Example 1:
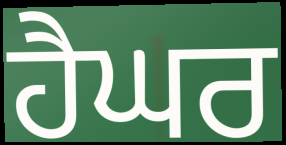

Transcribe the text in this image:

ਹੈਘਰ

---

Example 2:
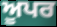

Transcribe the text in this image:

ਅੂਪਰ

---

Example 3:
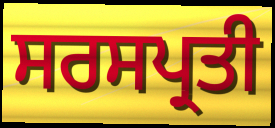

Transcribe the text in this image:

ਸਰਸਪ੍ਰਤੀ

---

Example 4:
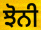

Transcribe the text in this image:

ਝੋਨੀ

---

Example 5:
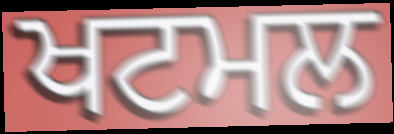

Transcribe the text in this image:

ਖਟਮਲ